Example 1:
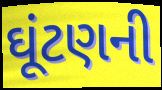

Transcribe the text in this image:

ઘૂંટણની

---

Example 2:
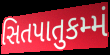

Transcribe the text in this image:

સિતપાતુકમ્મં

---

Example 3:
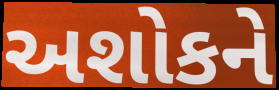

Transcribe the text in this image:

અશોકને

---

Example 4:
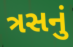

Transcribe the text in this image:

ત્રસનું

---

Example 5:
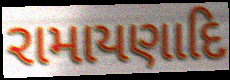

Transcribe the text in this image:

રામાયણાદિ